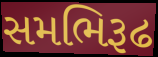
સમભિરૂઢ